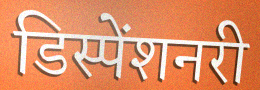
डिस्पेंशनरी